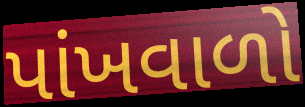
પાંખવાળો